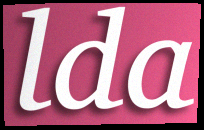
lda